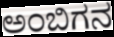
ಅಂಬಿಗನ